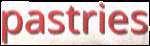
pastries